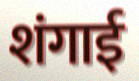
शंगाई